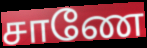
சாணே